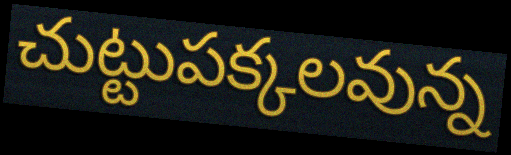
చుట్టుపక్కలవున్న